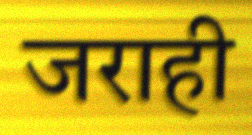
जराही